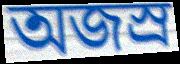
অজস্ৰ